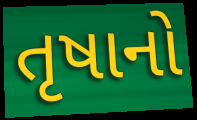
તૃષાનો